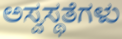
ಅಸ್ವಸ್ಥತೆಗಳು